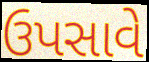
ઉપસાવે